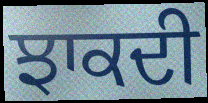
ਝਾਕਦੀ